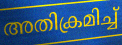
അതിക്രമിച്ച്